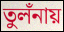
তুলঁনায়